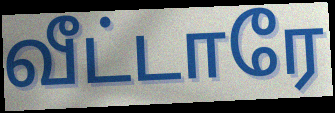
வீட்டாரே